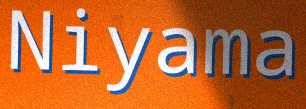
Niyama